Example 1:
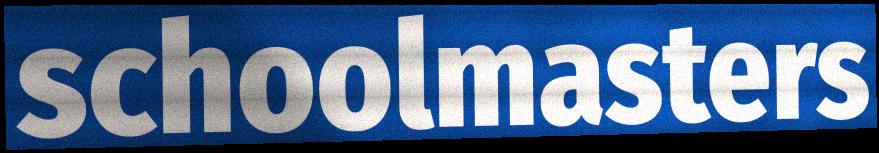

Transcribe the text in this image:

schoolmasters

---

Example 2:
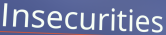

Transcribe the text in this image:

Insecurities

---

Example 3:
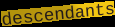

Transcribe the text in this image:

descendants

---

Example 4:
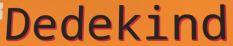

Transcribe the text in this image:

Dedekind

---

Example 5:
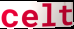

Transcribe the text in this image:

celt